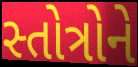
સ્તોત્રોને